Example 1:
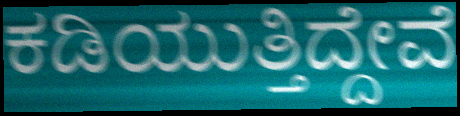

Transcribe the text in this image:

ಕಡಿಯುತ್ತಿದ್ದೇವೆ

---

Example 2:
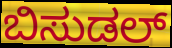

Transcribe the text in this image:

ಬಿಸುಡಲ್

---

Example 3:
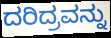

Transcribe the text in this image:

ದರಿದ್ರವನ್ನು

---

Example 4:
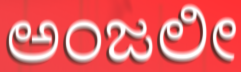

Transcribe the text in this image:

ಅಂಜಲೀ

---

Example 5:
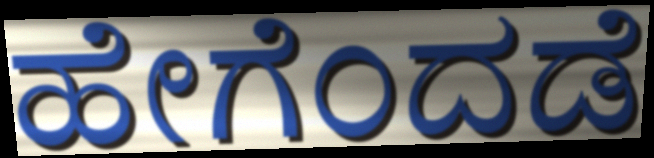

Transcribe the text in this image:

ಹೇಗೆಂದಡೆ